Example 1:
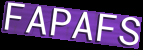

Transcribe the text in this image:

FAPAFS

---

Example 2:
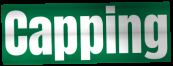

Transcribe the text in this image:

Capping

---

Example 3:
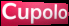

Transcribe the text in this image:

Cupolo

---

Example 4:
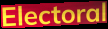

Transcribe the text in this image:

Electoral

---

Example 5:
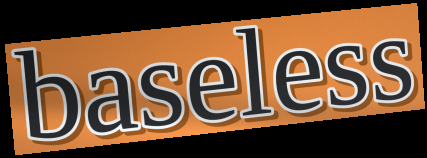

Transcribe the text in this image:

baseless